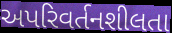
અપરિવર્તનશીલતા